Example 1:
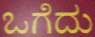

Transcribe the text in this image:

ಒಗೆದು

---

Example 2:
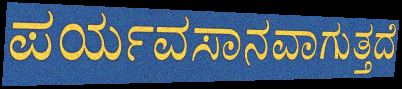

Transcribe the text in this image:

ಪರ್ಯವಸಾನವಾಗುತ್ತದೆ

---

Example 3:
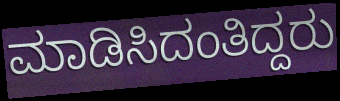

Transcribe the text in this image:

ಮಾಡಿಸಿದಂತಿದ್ದರು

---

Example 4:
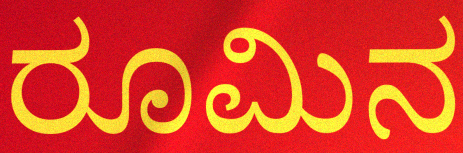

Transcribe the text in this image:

ರೂಮಿನ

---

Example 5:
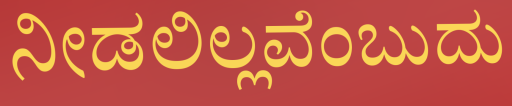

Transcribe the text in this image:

ನೀಡಲಿಲ್ಲವೆಂಬುದು